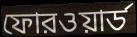
ফোরওয়ার্ড